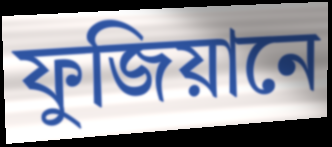
ফুজিয়ানে